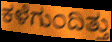
ಕಳೆಗುಂದಿತ್ತು